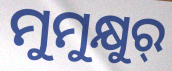
ମୁମୁକ୍ଷୁର୍